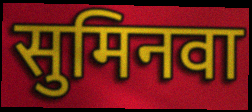
सुमिनवा